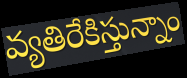
వ్యతిరేకిస్తున్నాం